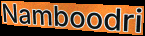
Namboodri